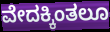
ವೇದಕ್ಕಿಂತಲೂ